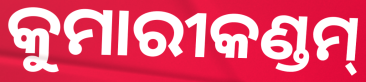
କୁମାରୀକଣ୍ଡମ୍